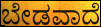
ಬೇಡವಾದೆ